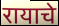
रायाचे